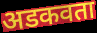
अडकवता